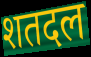
शतदल